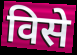
विसे